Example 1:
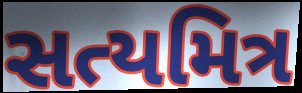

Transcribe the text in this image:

સત્યમિત્ર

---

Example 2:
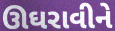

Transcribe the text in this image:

ઊઘરાવીને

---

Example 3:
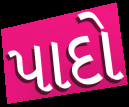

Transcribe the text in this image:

પાદો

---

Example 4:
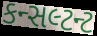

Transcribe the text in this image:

કન્સલ્ટન્ટ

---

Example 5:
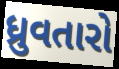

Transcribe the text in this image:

ધ્રુવતારો